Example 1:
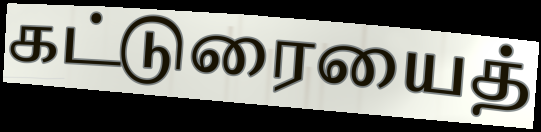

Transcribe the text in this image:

கட்டுரையைத்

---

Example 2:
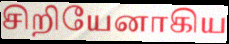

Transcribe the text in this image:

சிறியேனாகிய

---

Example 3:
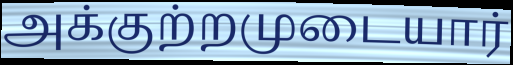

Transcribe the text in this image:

அக்குற்றமுடையார்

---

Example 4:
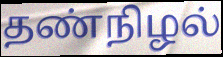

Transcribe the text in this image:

தண்நிழல்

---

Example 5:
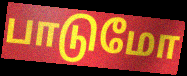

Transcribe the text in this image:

பாடுமோ